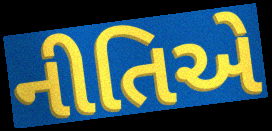
નીતિએ